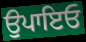
ਉਪਾਇਓ